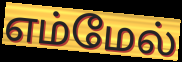
எம்மேல்